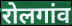
रोलगांव